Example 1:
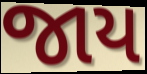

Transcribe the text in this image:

જાય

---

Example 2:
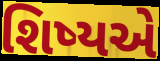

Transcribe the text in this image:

શિષ્યએ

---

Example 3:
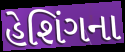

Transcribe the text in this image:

હેશિંગના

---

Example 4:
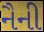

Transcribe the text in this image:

નૈની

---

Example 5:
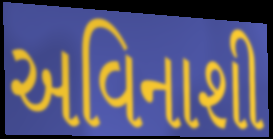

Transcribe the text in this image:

અવિનાશી